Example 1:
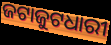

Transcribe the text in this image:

ଜଟାଜୁଟଧାରୀ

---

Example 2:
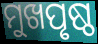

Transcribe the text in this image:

ମୁଖପୃଷ୍ଠ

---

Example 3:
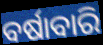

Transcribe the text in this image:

ବର୍ଷାବାରି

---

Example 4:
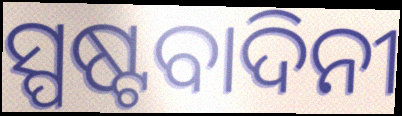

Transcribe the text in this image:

ସ୍ପଷ୍ଟବାଦିନୀ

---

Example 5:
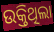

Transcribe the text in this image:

ଉକ୍ତିଥିଲା